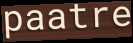
paatre